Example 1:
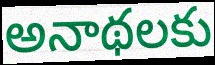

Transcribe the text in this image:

అనాథలకు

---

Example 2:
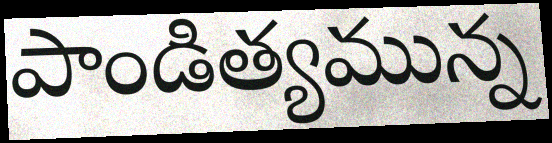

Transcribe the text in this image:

పాండిత్యమున్న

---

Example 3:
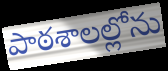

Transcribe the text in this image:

పాఠశాలల్లోను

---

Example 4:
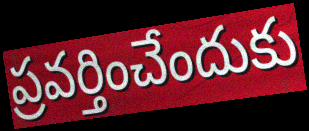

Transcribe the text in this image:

ప్రవర్తించేందుకు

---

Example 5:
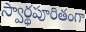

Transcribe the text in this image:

స్వార్థపూరితంగా